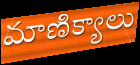
మాణిక్యాలు